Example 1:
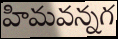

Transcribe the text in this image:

హిమవన్నగ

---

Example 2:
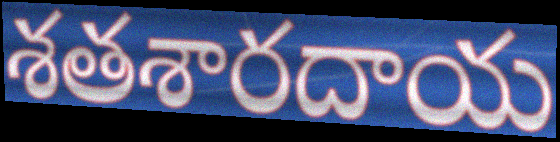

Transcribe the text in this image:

శతశారదాయ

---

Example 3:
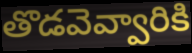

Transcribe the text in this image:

తొడవెవ్వారికి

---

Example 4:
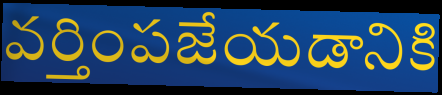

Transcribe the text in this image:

వర్తింపజేయడానికి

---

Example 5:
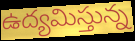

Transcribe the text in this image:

ఉద్యమిస్తున్న